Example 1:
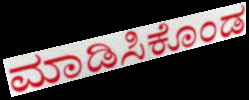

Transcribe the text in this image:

ಮಾಡಿಸಿಕೊಂಡ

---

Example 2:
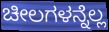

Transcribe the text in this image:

ಚೀಲಗಳನ್ನೆಲ್ಲ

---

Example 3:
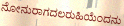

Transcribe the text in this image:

ನೋನುರಾಗದಲರುಹಿಯೆಂದನು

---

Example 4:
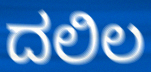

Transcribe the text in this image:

ದಲಿಲ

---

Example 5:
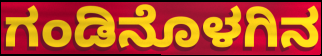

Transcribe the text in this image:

ಗಂಡಿನೊಳಗಿನ